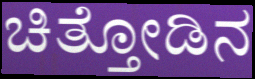
ಚಿತ್ತೋಡಿನ